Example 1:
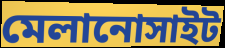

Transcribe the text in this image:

মেলানোসাইট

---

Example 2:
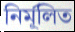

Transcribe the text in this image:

নির্মূলিত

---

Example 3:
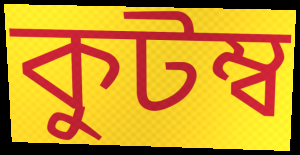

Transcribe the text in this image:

কুটম্ব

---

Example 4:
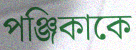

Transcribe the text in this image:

পঞ্জিকাকে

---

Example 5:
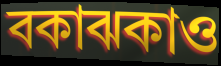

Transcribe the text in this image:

বকাঝকাও